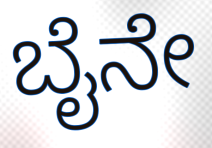
ಬೈನೇ